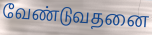
வேண்டுவதனை